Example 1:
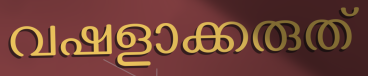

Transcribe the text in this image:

വഷളാക്കരുത്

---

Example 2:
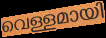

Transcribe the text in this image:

വെള്ളമായി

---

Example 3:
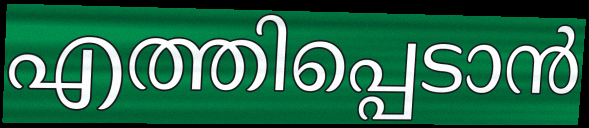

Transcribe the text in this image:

എത്തിപ്പെടാൻ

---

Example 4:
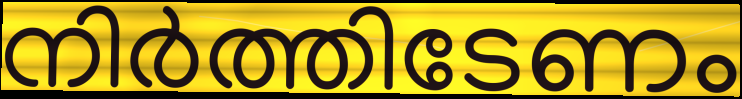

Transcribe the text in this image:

നിർത്തിടേണം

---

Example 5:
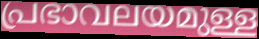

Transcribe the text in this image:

പ്രഭാവലയമുള്ള